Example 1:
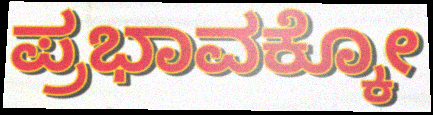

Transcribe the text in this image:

ಪ್ರಭಾವಕ್ಕೋ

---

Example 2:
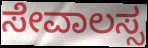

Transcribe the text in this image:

ಸೇವಾಲಸ್ಸ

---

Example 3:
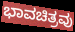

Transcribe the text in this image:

ಭಾವಚಿತ್ರವು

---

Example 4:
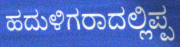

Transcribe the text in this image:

ಹದುಳಿಗರಾದಲ್ಲಿಪ್ಪ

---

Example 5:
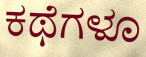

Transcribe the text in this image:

ಕಥೆಗಳೂ